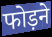
फोड़ने